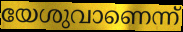
യേശുവാണെന്ന്